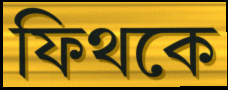
ফিথকে